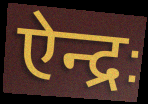
ऐन्द्रः